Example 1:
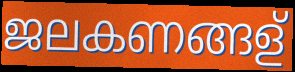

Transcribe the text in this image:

ജലകണങ്ങള്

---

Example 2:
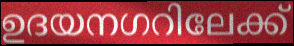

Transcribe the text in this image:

ഉദയനഗറിലേക്ക്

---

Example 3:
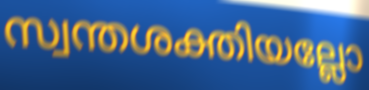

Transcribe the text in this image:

സ്വന്തശക്തിയല്ലോ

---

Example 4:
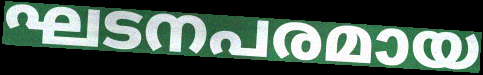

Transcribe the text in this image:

ഘടനപരമായ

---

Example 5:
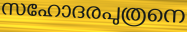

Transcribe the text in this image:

സഹോദരപുത്രനെ